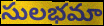
సులభమా